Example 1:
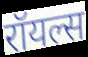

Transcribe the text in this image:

रॉयल्स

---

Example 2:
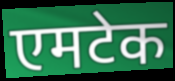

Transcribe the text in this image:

एमटेक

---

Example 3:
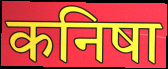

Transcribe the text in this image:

कनिषा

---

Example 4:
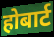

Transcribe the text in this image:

होबार्ट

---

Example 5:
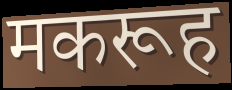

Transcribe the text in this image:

मकरूह